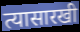
त्यासारखी